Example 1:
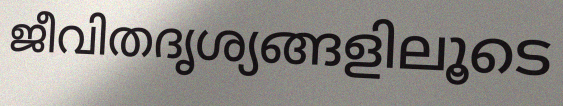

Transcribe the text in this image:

ജീവിതദൃശ്യങ്ങളിലൂടെ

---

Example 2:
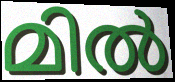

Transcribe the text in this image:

മിൽ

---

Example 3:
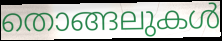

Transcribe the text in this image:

തൊങ്ങലുകൾ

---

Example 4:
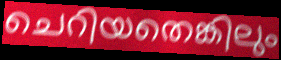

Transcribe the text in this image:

ചെറിയതെങ്കിലും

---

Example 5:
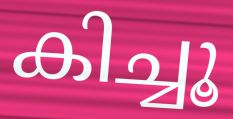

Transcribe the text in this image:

കിച്ചൂ